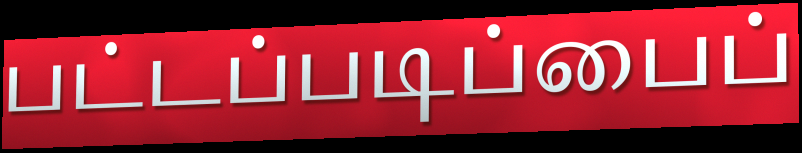
பட்டப்படிப்பைப்